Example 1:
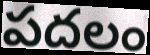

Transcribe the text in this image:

పదలం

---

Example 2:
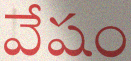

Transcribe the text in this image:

వేషం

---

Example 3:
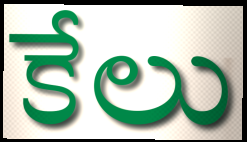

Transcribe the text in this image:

కేలు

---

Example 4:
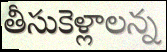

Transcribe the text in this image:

తీసుకెళ్లాలన్న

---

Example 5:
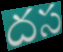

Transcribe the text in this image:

దస